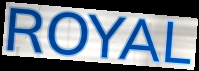
ROYAL